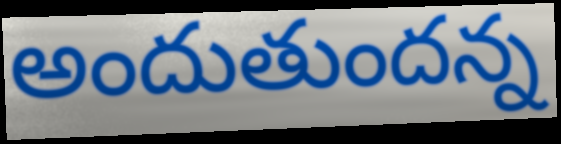
అందుతుందన్న